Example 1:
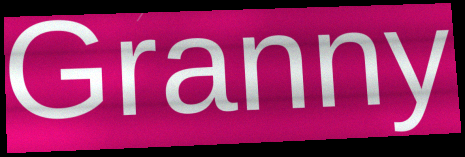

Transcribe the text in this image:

Granny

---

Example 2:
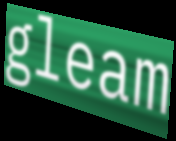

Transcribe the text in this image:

gleam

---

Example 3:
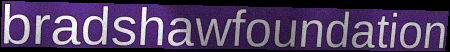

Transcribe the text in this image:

bradshawfoundation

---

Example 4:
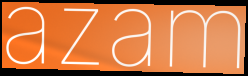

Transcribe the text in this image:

azam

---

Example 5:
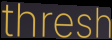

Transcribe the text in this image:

thresh